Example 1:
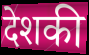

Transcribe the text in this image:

देशकी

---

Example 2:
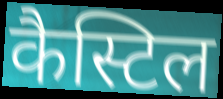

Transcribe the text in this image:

कैस्टिल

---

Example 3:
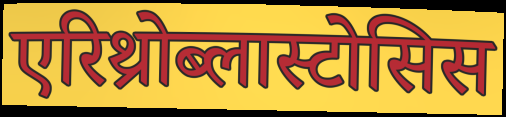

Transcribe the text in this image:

एरिथ्रोब्लास्टोसिस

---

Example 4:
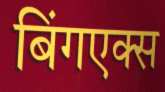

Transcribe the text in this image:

बिंगएक्स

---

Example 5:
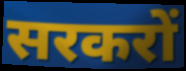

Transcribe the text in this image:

सरकरों